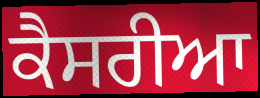
ਕੈਸਰੀਆ